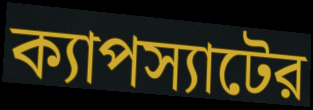
ক্যাপস্যাটের